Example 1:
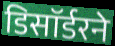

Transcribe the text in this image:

डिसॉर्डरने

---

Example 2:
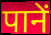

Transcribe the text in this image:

पानें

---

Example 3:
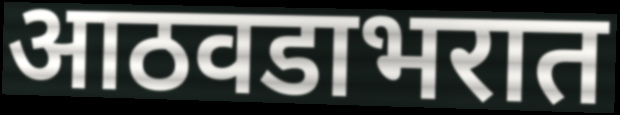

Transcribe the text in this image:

आठवडाभरात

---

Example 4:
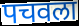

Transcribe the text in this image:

पचवला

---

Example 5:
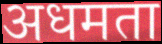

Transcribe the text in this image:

अधमता